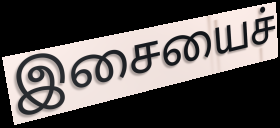
இசையைச்